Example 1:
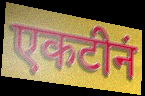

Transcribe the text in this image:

एकटीनं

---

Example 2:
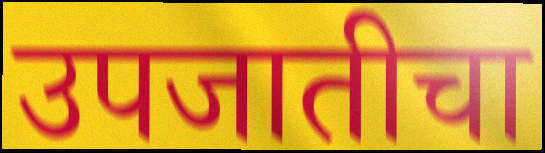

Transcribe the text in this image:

उपजातीचा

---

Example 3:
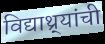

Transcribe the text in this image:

विद्याथ्र्यांची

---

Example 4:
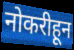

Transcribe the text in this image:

नोकरीहून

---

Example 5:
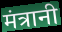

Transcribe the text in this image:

मंत्रानी